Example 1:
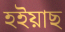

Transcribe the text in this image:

হইয়াছ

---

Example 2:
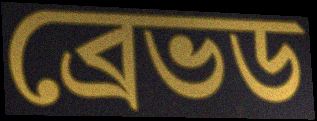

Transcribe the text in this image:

ব্রেভড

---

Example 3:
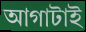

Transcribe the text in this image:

আগাটাই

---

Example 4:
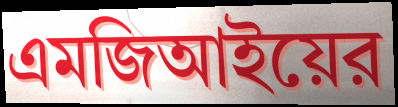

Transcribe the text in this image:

এমজিআইয়ের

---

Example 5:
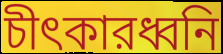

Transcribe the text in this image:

চীৎকারধ্বনি